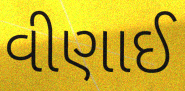
વીણાઈ